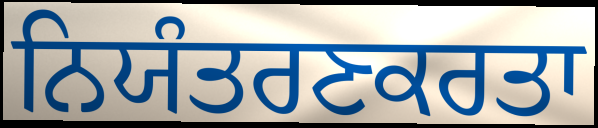
ਨਿਯੰਤਰਣਕਰਤਾ